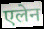
एलेन